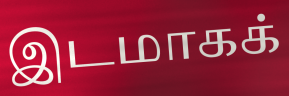
இடமாகக்